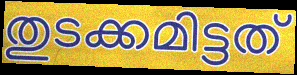
തുടക്കമിട്ടത്